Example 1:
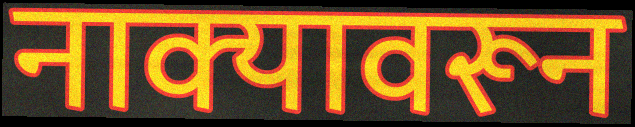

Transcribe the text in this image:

नाक्यावरून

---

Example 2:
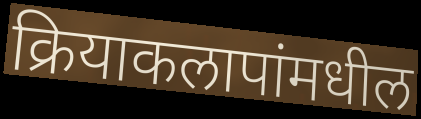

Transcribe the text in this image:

क्रियाकलापांमधील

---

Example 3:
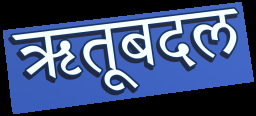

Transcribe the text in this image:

ऋतूबदल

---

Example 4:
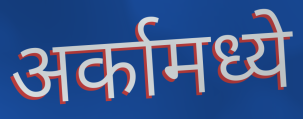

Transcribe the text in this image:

अर्कामध्ये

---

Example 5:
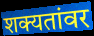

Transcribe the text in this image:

शक्यतांवर